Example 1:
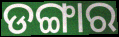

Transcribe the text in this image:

ଡଙ୍ଗାର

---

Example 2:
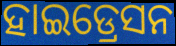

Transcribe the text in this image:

ହାଇଡ୍ରେସନ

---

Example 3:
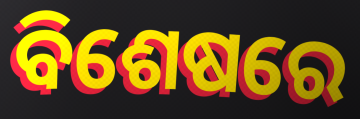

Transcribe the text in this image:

ବିଶେଷରେ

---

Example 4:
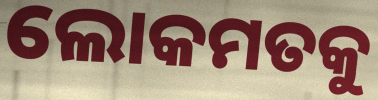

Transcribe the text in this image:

ଲୋକମତକୁ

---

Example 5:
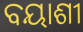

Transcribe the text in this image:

ବୟାଶୀ